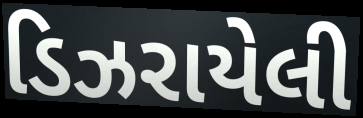
ડિઝરાયેલી